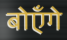
बोएँगे